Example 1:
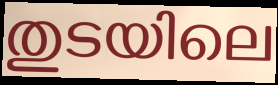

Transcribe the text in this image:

തുടയിലെ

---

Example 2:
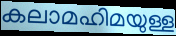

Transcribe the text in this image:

കലാമഹിമയുള്ള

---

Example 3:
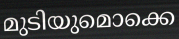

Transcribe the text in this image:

മുടിയുമൊക്കെ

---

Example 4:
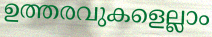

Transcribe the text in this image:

ഉത്തരവുകളെല്ലാം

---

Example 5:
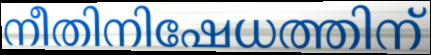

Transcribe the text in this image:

നീതിനിഷേധത്തിന്